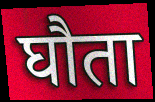
घौता